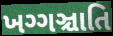
ખગ્ગઞ્ચાતિ